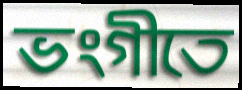
ভংগীতে